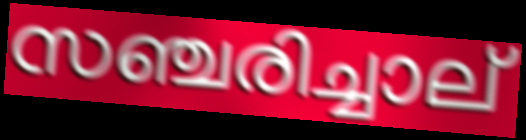
സഞ്ചരിച്ചാല്